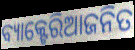
ବ୍ୟାକ୍ଟେରିଆଜନିତ